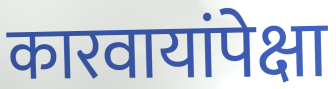
कारवायांपेक्षा